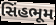
સિંહભૂમ